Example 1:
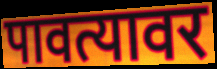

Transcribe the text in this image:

पावत्यावर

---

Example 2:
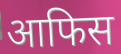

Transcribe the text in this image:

आफिस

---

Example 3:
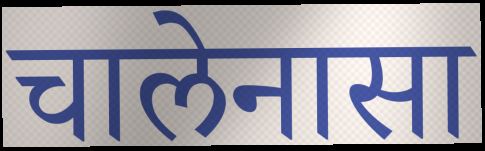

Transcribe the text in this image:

चालेनासा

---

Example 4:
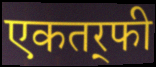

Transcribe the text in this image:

एकतर्फी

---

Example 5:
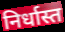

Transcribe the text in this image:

निर्धास्त